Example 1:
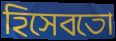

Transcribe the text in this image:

হিসেবতো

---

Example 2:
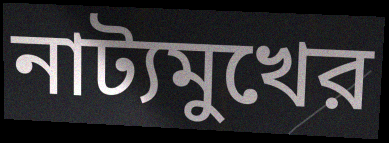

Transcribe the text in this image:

নাট্যমুখের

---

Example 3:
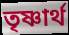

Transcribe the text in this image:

তৃষ্ণার্থ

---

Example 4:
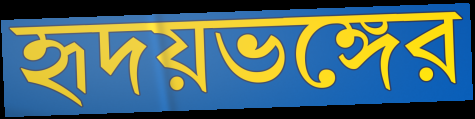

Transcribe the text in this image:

হৃদয়ভঙ্গের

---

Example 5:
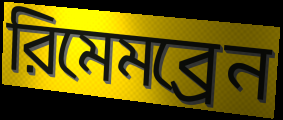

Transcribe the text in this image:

রিমেমব্রেন